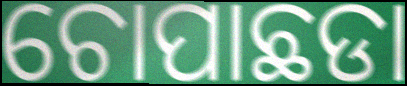
ଚୋପାଛଡା